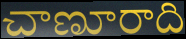
చాణూరాది